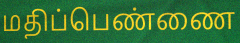
மதிப்பெண்ணை